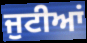
ਜੁਟੀਆਂ